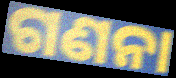
ଗଣନା